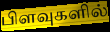
பிளவுகளில்